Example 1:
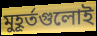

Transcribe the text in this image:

মুহূর্তগুলোই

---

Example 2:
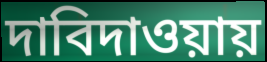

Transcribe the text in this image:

দাবিদাওয়ায়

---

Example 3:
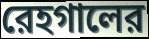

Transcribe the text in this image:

রেহগালের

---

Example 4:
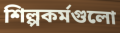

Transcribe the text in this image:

শিল্পকর্মগুলো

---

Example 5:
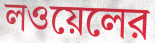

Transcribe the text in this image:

লওয়েলের